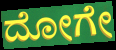
ದೋಗೇ